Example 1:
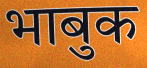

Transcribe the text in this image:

भाबुक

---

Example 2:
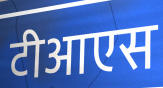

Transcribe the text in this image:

टीआएस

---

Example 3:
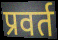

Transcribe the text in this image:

प्रवर्त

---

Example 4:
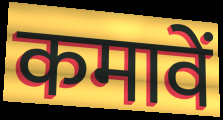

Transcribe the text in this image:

कमावें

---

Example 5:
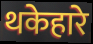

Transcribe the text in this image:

थकेहारे